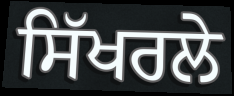
ਸਿੱਖਰਲੇ